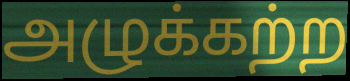
அழுக்கற்ற